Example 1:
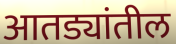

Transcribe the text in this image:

आतड्यांतील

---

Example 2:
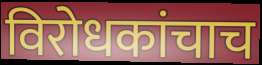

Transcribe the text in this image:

विरोधकांचाच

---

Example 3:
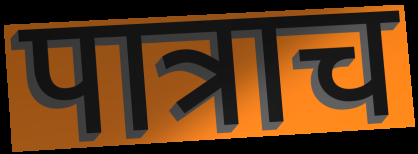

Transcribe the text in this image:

पात्राच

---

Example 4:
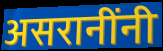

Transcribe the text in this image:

असरानींनी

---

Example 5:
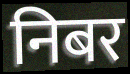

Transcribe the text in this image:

निबर